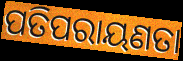
ପତିପରାୟଣତା